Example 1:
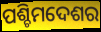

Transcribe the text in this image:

ପଶ୍ଚିମଦେଶର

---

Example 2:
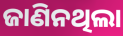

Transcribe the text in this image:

ଜାଣିନଥିଲା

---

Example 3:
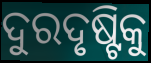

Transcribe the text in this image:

ଦୁରଦୃଷ୍ଟିକୁ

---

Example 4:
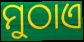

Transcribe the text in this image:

ମୁଠାଏ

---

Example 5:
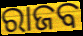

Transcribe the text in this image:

ରାଜବ